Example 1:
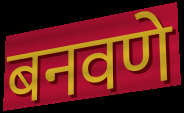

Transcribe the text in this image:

बनवणे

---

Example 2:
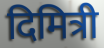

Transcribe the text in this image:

दिमित्री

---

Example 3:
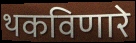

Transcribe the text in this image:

थकविणारे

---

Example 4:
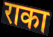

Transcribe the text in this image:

राका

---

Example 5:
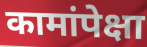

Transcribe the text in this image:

कामांपेक्षा